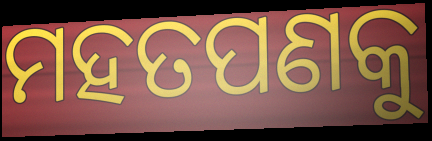
ମହତପଣକୁ